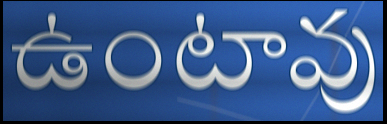
ఉంటావు